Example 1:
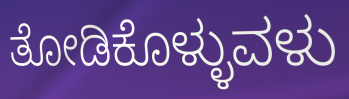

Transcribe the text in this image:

ತೋಡಿಕೊಳ್ಳುವಳು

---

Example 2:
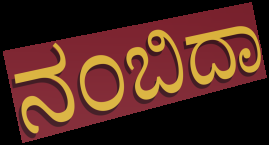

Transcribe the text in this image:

ನಂಬಿದಾ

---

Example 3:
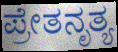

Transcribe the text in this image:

ಪ್ರೇತನೃತ್ಯ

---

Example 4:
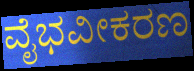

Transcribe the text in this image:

ವೈಭವೀಕರಣ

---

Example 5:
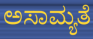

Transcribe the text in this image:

ಅಸಾಮ್ಯತೆ